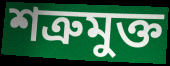
শত্রুমুক্ত